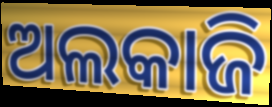
ଅଲକାଜି